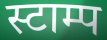
स्टाम्प